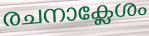
രചനാക്ലേശം